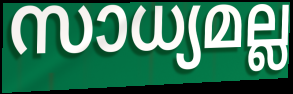
സാധ്യമല്ല